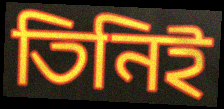
তিনিই